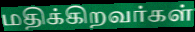
மதிக்கிறவர்கள்